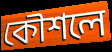
কৌশলে